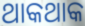
ଥାକଥାକ